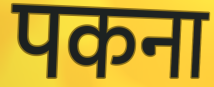
पकना